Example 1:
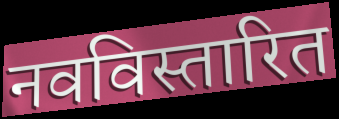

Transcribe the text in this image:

नवविस्तारित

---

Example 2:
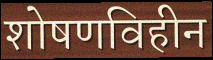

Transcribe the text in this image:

शोषणविहीन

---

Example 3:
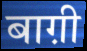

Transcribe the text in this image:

बाग़ी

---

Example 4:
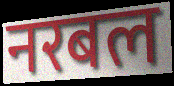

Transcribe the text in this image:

नरबल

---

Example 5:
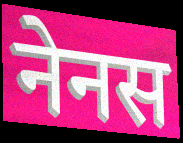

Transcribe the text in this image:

नेनस